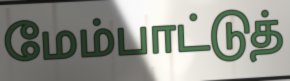
மேம்பாட்டுத்